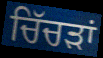
ਚਿੱਚੜਾਂ